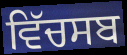
ਵਿੱਚਸਬ